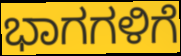
ಭಾಗಗಳಿಗೆ